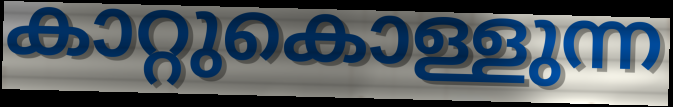
കാറ്റുകൊള്ളുന്ന